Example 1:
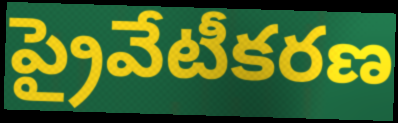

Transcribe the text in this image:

ప్రైవేటీకరణ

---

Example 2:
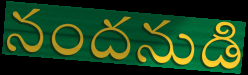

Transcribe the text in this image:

నందనుడి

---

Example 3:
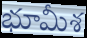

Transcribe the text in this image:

భూమీశ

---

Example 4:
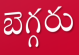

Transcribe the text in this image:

బెగ్గరు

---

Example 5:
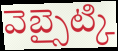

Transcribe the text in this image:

వెబ్సైట్కి